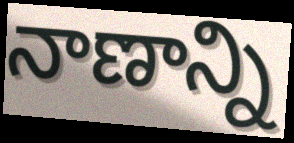
నాణాన్ని